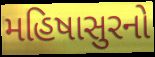
મહિષાસુરનો